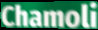
Chamoli